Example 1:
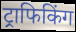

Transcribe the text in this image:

ट्राफिकिंग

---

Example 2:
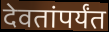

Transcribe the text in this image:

देवतांपर्यंत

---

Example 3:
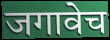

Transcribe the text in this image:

जगावेच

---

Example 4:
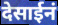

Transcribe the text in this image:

देसाईनं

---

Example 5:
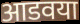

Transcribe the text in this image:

आडवया